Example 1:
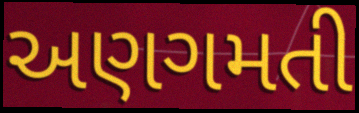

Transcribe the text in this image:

અણગમતી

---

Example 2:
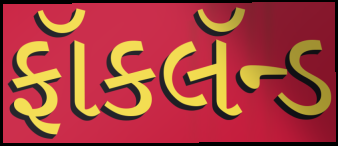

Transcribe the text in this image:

ફૉકલૅન્ડ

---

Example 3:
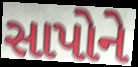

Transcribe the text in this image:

સાપોને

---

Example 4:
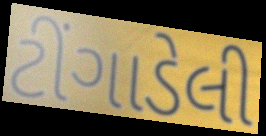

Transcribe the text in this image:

ટીંગાડેલી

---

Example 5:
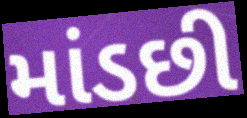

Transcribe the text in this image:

માંડછી